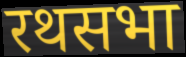
रथसभा